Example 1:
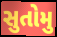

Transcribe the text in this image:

સુતોમુ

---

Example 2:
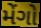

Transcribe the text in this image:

મેંગો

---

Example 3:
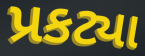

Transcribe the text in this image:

પ્રકટ્યા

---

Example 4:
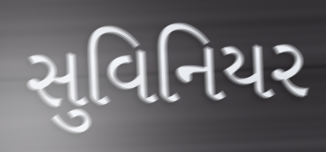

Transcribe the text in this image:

સુવિનિયર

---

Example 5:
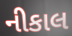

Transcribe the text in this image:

નીકાલ